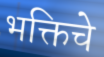
भक्तिचे